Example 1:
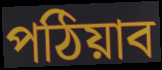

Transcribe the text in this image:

পঠিয়াব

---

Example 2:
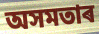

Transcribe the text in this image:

অসমতাৰ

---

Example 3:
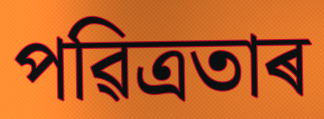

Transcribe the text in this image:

পৱিত্ৰতাৰ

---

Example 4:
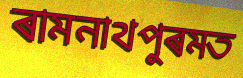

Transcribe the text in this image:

ৰামনাথপুৰমত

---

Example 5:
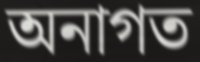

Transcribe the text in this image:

অনাগত